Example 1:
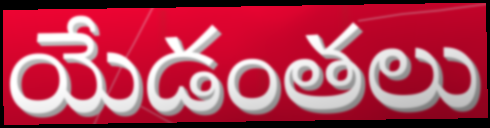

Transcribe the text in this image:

యేడంతలు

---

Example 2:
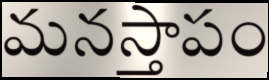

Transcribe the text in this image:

మనస్తాపం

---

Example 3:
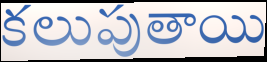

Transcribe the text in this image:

కలుపుతాయి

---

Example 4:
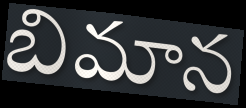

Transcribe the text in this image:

బిమాన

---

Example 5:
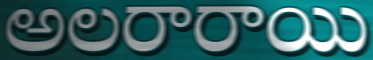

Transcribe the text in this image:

అలరారాయి